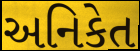
અનિકેત